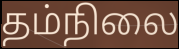
தம்நிலை